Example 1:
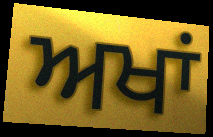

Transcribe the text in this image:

ਅਖਾਂ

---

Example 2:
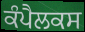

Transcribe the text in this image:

ਕੰਪੈਲਕਸ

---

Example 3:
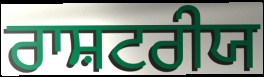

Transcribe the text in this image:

ਰਾਸ਼ਟਰੀਯ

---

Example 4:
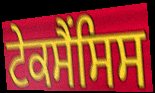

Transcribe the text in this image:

ਟੇਕਸੈਂਸਿਸ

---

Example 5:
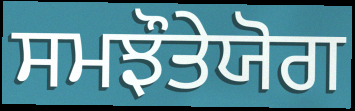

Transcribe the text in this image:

ਸਮਝੌਤੇਯੋਗ